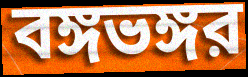
বঙ্গভঙ্গর